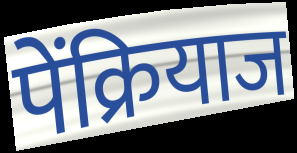
पेंक्रियाज